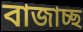
বাজাচ্ছ